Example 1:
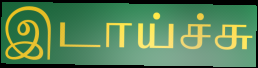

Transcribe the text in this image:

இடாய்ச்சு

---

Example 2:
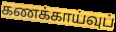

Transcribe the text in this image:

கணக்காய்வுப்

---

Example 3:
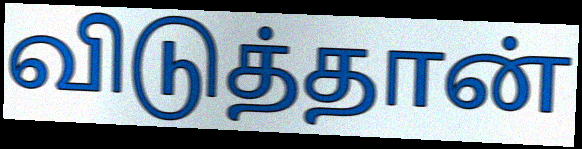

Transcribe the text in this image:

விடுத்தான்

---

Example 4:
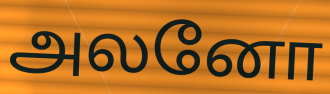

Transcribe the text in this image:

அலனோ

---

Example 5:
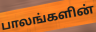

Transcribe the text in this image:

பாலங்களின்